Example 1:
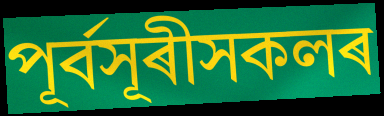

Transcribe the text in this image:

পূৰ্বসূৰীসকলৰ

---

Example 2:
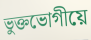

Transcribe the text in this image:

ভুক্তভোগীয়ে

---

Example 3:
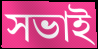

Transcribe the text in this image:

সভাই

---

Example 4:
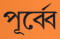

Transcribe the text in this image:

পূৰ্ব্বে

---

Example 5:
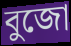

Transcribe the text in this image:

বুজো